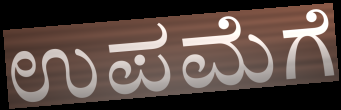
ಉಪಮೆಗೆ